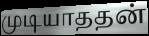
முடியாததன்